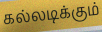
கல்லடிக்கும்